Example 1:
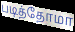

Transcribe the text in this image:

படித்தோமா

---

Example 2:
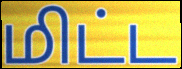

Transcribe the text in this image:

மிட்ட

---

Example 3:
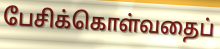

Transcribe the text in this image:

பேசிக்கொள்வதைப்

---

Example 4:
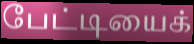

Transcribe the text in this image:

பேட்டியைக்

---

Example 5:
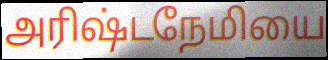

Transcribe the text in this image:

அரிஷ்டநேமியை